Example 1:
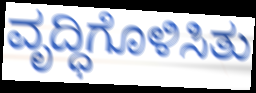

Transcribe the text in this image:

ವೃದ್ಧಿಗೊಳಿಸಿತು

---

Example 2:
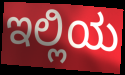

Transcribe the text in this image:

ಇಲ್ಲಿಯ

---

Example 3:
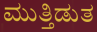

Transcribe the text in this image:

ಮುತ್ತಿಡುತ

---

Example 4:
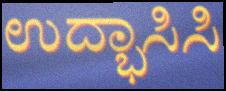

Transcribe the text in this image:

ಉದ್ಭಾಸಿಸಿ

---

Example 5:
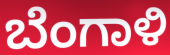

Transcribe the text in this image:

ಬೆಂಗಾಳಿ